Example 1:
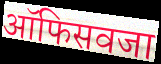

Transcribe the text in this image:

ऑफिसवजा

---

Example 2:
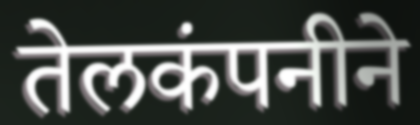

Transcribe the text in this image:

तेलकंपनीने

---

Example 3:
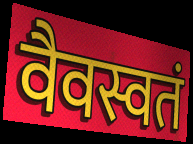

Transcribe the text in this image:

वैवस्वतं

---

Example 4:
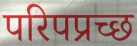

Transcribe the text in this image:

परिपप्रच्छ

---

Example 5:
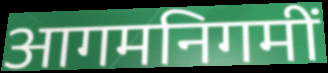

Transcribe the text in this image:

आगमनिगमीं